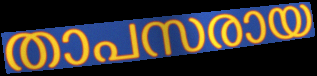
താപസരായ